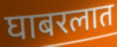
घाबरलात